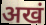
अखं